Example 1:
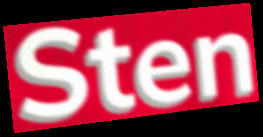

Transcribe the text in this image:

Sten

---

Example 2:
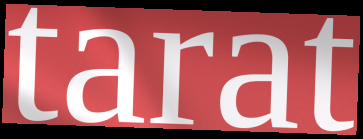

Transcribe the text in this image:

tarat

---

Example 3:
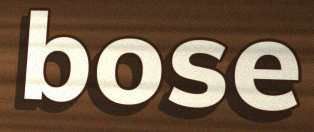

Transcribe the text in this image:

bose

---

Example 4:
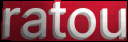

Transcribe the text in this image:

ratou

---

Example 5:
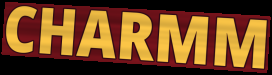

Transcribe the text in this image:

CHARMM